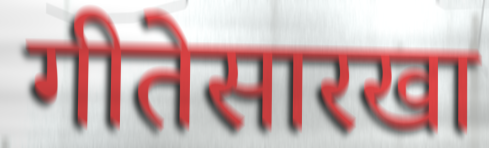
गीतेसारखा